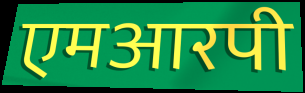
एमआरपी